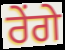
ਰੇਂਗੇ